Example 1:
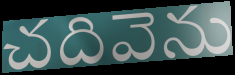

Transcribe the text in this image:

చదివెను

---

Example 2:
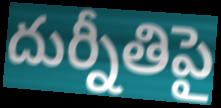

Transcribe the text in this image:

దుర్నీతిపై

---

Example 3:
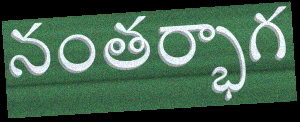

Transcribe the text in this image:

నంతర్భాగ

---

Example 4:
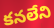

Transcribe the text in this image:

కనలేని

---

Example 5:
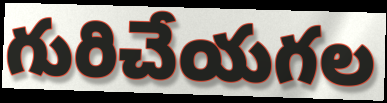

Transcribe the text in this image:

గురిచేయగల